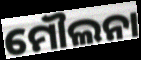
ମୌଲନା